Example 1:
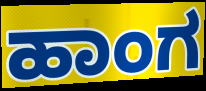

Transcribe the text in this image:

ಹಾಂಗ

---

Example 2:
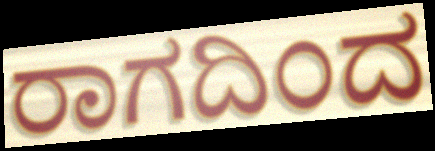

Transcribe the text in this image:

ರಾಗದಿಂದ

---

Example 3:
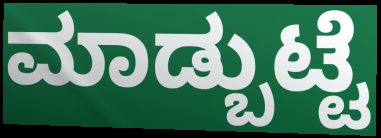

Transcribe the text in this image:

ಮಾಡ್ಬುಟ್ಟೆ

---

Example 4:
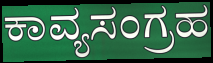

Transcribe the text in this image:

ಕಾವ್ಯಸಂಗ್ರಹ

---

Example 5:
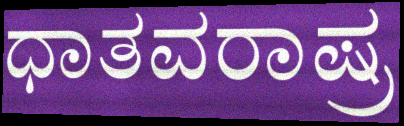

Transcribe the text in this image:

ಧಾತವರಾಷ್ರ